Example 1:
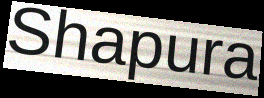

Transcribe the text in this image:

Shapura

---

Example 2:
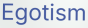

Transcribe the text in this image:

Egotism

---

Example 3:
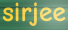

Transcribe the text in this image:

sirjee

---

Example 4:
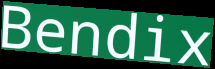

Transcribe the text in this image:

Bendix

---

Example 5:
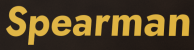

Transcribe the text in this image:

Spearman